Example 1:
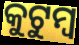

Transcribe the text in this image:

କୁଟୁମ୍ୱ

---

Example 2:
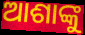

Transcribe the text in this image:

ଆଶାଙ୍କୁ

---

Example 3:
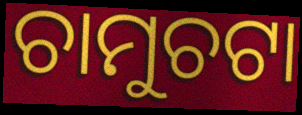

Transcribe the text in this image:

ଚାମୁଚଟା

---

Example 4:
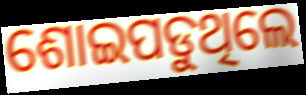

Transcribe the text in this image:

ଶୋଇପଡୁଥିଲେ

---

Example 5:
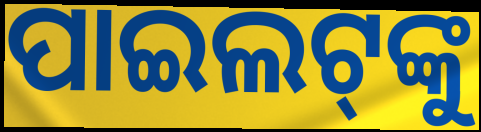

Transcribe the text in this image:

ପାଇଲଟ୍‌ଙ୍କୁ